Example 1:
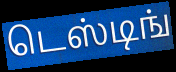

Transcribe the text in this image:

டெஸ்டிங்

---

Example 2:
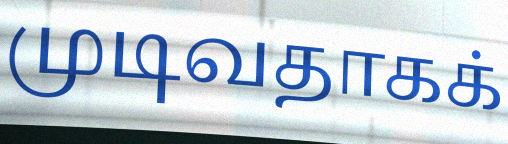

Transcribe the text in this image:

முடிவதாகக்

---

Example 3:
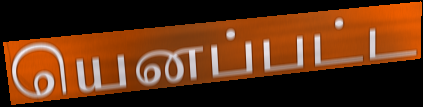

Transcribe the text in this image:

யெனப்பட்ட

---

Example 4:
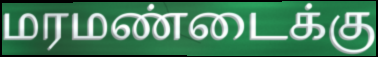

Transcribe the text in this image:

மரமண்டைக்கு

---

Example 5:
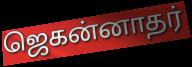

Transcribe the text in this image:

ஜெகன்னாதர்